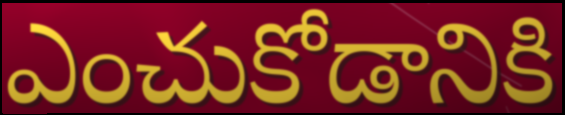
ఎంచుకోడానికి